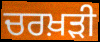
ਚਰਖ਼ੜੀ